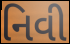
નિવી